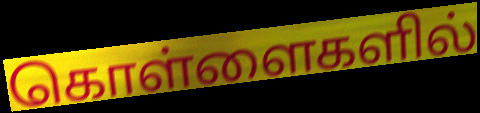
கொள்ளைகளில்